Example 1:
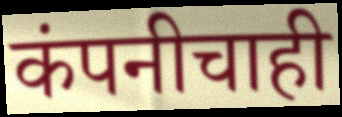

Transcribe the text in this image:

कंपनीचाही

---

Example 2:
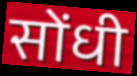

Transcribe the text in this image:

सोंधी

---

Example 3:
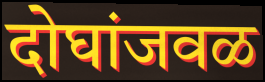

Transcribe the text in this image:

दोघांजवळ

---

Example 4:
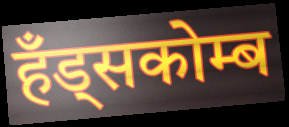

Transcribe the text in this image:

हँड्सकोम्ब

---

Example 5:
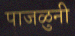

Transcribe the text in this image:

पाजळुनी